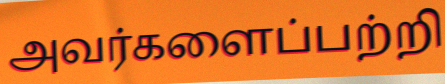
அவர்களைப்பற்றி